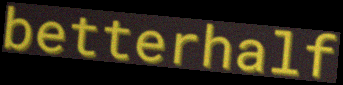
betterhalf